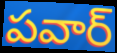
పవార్